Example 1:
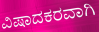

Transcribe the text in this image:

ವಿಷಾದಕರವಾಗಿ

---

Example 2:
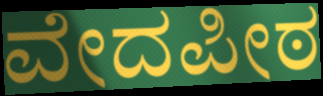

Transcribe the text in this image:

ವೇದಪೀಠ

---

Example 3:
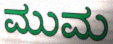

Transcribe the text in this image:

ಮುಮ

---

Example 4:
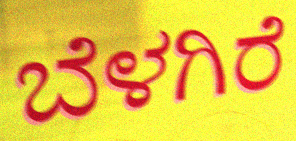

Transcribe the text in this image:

ಬೆಳಗಿರೆ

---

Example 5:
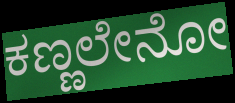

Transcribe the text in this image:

ಕಣ್ಣಲೇನೋ